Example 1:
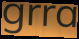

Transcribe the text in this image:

grra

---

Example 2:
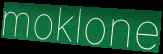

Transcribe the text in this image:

moklone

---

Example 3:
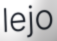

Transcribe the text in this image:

lejo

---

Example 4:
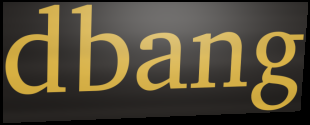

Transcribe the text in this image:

dbang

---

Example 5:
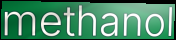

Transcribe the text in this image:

methanol